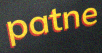
patne